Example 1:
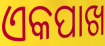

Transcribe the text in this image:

ଏକପାଖ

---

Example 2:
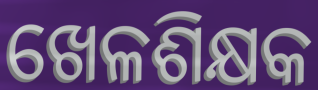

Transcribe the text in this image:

ଖେଳଶିକ୍ଷକ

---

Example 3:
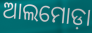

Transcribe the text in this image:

ଆଲମୋଡ଼ା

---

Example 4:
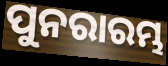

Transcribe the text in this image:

ପୁନରାରମ୍ଭ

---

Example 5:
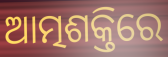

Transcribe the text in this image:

ଆତ୍ମଶକ୍ତିରେ